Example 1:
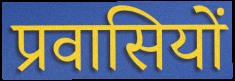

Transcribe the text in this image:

प्रवासियों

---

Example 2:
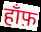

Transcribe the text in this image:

हाँफ़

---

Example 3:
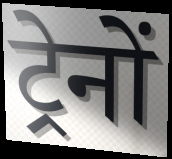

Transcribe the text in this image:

ट्रेनों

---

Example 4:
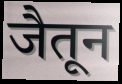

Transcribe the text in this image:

जैतून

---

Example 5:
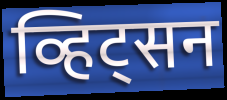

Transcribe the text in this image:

व्हिट्सन